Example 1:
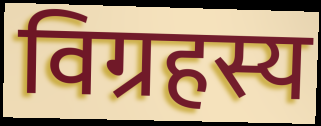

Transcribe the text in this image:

विग्रहस्य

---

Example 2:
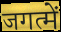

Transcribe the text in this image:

जगत्में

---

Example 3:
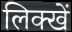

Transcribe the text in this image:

लिक्खें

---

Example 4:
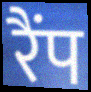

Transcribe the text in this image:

रैंप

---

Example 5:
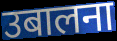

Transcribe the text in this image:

उबालना